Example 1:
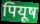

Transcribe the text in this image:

पियूष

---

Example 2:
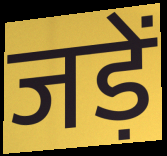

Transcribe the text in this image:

जड़ें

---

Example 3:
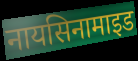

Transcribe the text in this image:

नायसिनामाइड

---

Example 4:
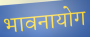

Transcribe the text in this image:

भावनायोग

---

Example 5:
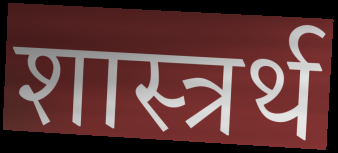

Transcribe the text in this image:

शास्त्रर्थ